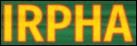
IRPHA